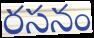
రసనం